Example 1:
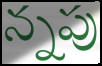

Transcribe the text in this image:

న్నపు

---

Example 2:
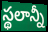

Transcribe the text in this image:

స్థలాన్నీ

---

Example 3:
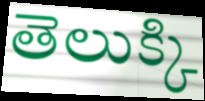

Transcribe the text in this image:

తెలుక్కి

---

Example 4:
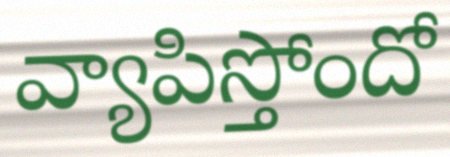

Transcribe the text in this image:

వ్యాపిస్తోందో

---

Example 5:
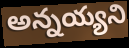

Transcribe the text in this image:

అన్నయ్యని